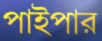
পাইপার